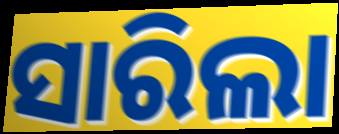
ସାରିଲା